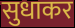
सुधाकर